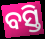
ବସ୍ତି